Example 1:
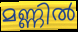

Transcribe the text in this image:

മണ്ണിൽ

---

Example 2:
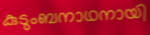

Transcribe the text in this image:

കുടുംബനാഥനായി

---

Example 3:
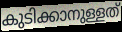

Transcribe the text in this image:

കുടിക്കാനുള്ളത്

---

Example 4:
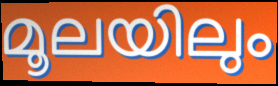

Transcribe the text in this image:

മൂലയിലും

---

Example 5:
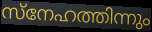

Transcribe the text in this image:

സ്നേഹത്തിന്നും